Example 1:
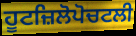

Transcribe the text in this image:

ਹੂਟਜ਼ਿਲੋਪੋਚਟਲੀ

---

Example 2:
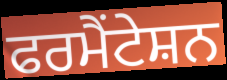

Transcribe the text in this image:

ਫਰਮੈਂਟੇਸ਼ਨ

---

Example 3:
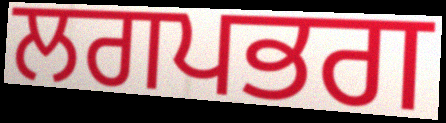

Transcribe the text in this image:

ਲਗਪਭਗ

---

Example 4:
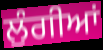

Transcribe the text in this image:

ਲੁੰਗੀਆਂ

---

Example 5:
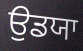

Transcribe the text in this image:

ਉਡਯਾ